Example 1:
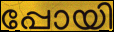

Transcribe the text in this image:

പ്പോയി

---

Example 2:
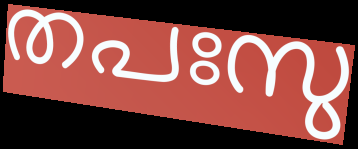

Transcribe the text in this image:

തപഃസു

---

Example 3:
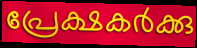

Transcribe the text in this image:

പ്രേക്ഷകർക്കു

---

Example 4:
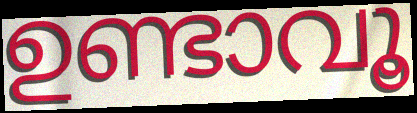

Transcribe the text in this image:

ഉണ്ടാവൂ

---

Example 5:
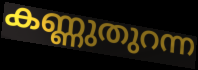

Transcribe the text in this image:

കണ്ണുതുറന്ന